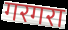
गरगरा